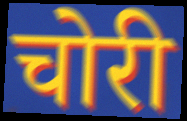
चोरी